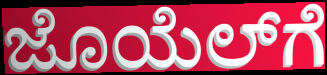
ಜೊಯೆಲ್‌ಗೆ